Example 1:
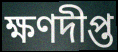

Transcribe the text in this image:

ক্ষণদীপ্ত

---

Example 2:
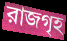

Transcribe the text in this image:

রাজগৃহ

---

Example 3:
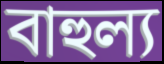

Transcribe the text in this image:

বাহুল্য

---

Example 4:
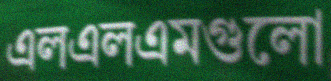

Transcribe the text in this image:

এলএলএমগুলো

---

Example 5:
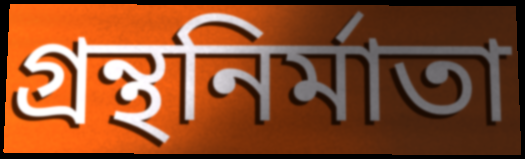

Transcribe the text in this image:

গ্রন্থনির্মাতা